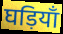
घड़ियाँ